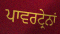
ਪਾਵਰਟ੍ਰੇਨਾਂ